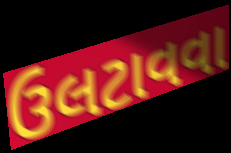
ઉલટાવવા